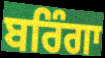
ਬਰਿੰਗਾ